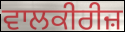
ਵਾਲਕੀਰੀਜ਼